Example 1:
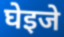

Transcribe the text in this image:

घेइजे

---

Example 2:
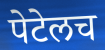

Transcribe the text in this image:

पेटेलच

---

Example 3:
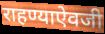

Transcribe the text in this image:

राहण्याऐवजी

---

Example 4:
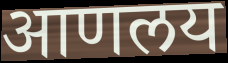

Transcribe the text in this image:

आणलय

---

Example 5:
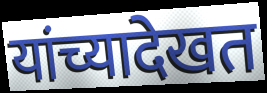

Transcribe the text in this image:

यांच्यादेखत